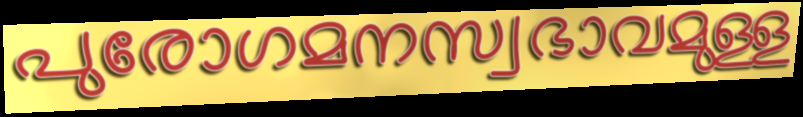
പുരോഗമനസ്വഭാവമുള്ള